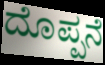
ದೊಪ್ಪನೆ